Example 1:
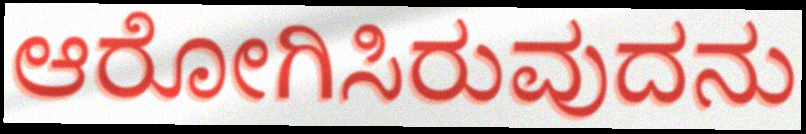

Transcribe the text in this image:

ಆರೋಗಿಸಿರುವುದನು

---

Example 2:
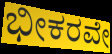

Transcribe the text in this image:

ಭೀಕರವೇ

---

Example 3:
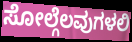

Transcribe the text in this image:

ಸೋಲ್ಗೆಲವುಗಳಲಿ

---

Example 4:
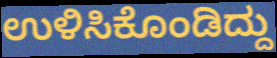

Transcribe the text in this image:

ಉಳಿಸಿಕೊಂಡಿದ್ದು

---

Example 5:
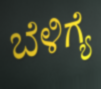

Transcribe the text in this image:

ಬೆಳಿಗ್ಯೆ